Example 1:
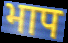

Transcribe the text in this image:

भाप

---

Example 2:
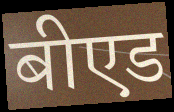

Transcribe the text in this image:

बीएड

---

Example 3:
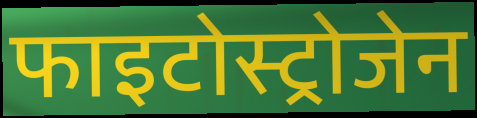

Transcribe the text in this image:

फाइटोस्ट्रोजेन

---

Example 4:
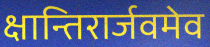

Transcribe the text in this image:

क्षान्तिरार्जवमेव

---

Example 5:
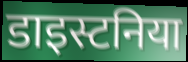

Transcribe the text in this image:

डाइस्टनिया